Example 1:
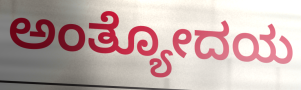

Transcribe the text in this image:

ಅಂತ್ಯೋದಯ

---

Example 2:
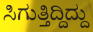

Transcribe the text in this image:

ಸಿಗುತ್ತಿದ್ದಿದ್ದು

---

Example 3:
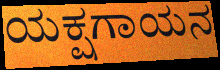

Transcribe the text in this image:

ಯಕ್ಷಗಾಯನ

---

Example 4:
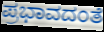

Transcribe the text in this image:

ಪ್ರಭಾವದಂತೆ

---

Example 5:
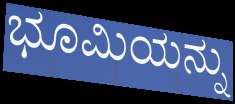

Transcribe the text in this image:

ಭೂಮಿಯನ್ನು